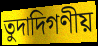
তুদাদিগণীয়